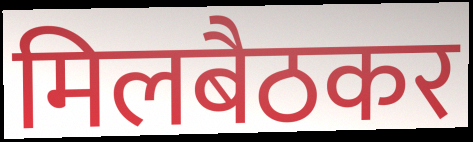
मिलबैठकर